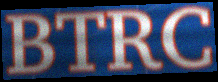
BTRC